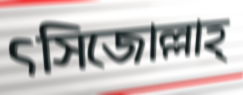
ৎসিজোল্লাহ্